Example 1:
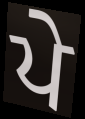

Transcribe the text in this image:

ਪੇ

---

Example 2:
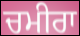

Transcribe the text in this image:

ਚਮੀਰਾ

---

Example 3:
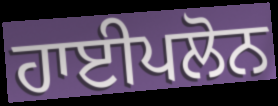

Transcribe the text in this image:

ਹਾਈਪਲੋਨ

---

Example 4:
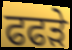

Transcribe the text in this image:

ਫਫੜੇ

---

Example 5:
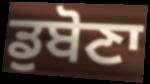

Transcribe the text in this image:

ਡੁਬੋਣਾ